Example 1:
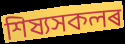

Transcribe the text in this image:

শিষ্যসকলৰ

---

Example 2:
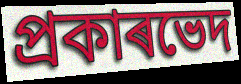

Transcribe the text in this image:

প্ৰকাৰভেদ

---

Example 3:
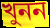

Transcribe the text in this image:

খুনন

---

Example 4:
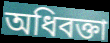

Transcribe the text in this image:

অধিবক্তা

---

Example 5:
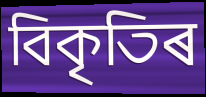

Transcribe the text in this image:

বিকৃতিৰ